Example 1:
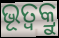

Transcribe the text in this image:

ଭୂତ୍ଵକ୍ରୁ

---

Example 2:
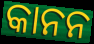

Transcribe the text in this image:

କାନନ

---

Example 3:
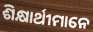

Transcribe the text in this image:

ଶିକ୍ଷାର୍ଥୀମାନେ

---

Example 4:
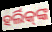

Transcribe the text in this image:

ହର୍ଲିକ୍‌ଙ୍କ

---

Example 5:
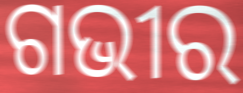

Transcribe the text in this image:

ଗଭୀର